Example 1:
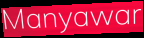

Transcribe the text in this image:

Manyawar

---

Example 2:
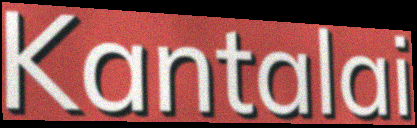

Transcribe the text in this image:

Kantalai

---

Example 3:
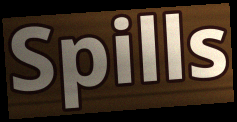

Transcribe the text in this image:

Spills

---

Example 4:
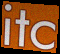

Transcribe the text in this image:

itc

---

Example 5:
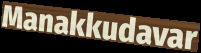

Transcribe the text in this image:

Manakkudavar